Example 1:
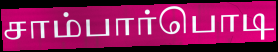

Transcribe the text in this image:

சாம்பார்பொடி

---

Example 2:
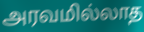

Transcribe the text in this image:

அரவமில்லாத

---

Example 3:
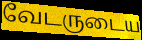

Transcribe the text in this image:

வேடருடைய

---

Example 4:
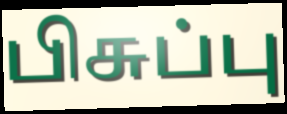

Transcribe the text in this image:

பிசுப்பு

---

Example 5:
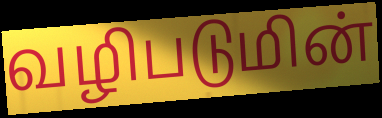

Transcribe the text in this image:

வழிபடுமின்